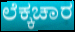
ಲೆಕ್ಕಚಾರ